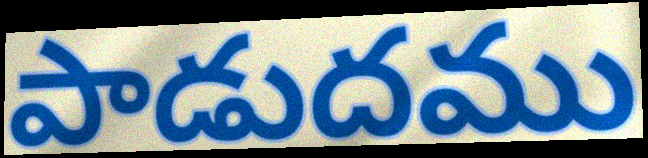
పాడుదము